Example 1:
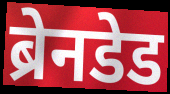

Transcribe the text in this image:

ब्रेनडेड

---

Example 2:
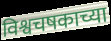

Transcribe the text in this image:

विश्वचषकाच्या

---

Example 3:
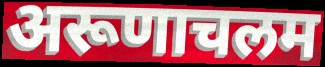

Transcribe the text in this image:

अरूणाचलम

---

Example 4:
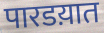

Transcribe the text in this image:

पारडय़ात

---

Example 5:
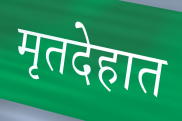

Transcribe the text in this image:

मृतदेहात